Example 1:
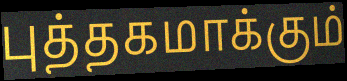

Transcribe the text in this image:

புத்தகமாக்கும்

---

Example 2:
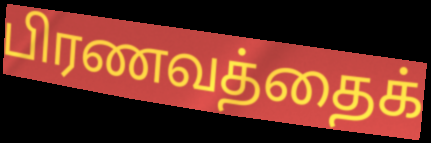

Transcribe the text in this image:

பிரணவத்தைக்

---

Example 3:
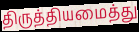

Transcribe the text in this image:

திருத்தியமைத்து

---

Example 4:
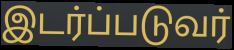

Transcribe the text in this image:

இடர்ப்படுவர்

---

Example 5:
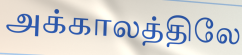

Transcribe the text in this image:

அக்காலத்திலே